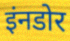
इंनडोर